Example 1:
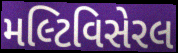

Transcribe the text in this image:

મલ્ટિવિસેરલ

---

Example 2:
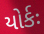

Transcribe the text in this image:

યોર્કઃ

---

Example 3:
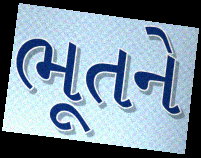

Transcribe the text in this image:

ભૂતને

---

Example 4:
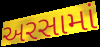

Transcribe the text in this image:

અરસામાં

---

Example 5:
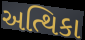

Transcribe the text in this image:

અત્થિકા